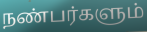
நண்பர்களும்